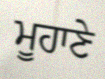
ਮੂਹਾਣੇ